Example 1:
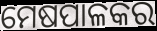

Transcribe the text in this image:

ମେଷପାଳକର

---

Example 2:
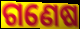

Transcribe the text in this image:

ଗଣେଷ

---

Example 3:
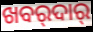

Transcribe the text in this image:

ଖବର୍‍ଦାର୍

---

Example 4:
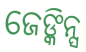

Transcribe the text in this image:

ଜେଙ୍କିନ୍ସ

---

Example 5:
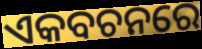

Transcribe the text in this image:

ଏକବଚନରେ